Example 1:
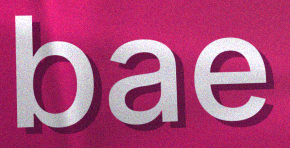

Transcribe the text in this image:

bae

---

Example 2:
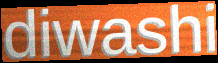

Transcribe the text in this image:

diwashi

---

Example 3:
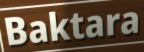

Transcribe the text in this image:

Baktara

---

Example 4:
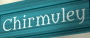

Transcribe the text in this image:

Chirmuley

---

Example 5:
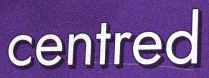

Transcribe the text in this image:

centred